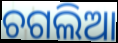
ଚଗଲିଆ